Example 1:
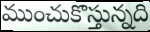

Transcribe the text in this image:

ముంచుకొస్తున్నది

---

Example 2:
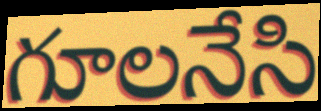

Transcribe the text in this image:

గూలనేసి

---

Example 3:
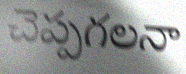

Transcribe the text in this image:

చెప్పగలనా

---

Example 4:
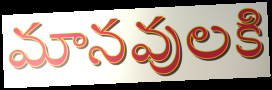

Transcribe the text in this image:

మానవులకి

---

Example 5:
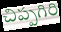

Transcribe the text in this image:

చిప్పగిరి